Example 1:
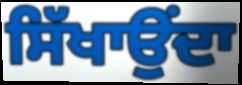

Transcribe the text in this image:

ਸਿੱਖਾਉਂਦਾ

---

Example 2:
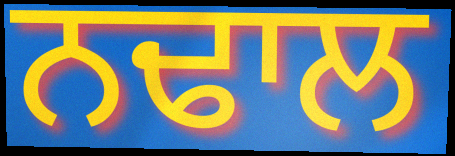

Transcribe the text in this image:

ਨਢਾਲ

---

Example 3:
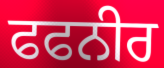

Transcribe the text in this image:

ਫਫਨੀਰ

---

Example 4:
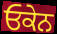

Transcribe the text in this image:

ਓਕੇਨ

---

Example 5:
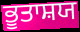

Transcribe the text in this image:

ਭੂਤਾਸ਼ਯ